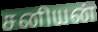
சனியன்